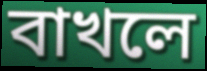
বাখলে